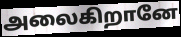
அலைகிறானே